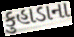
કુહાડાના